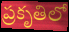
ప్రకృతిలో